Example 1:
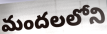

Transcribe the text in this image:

మందలలోని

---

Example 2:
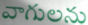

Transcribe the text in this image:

వాగులను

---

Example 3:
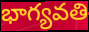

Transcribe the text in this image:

భాగ్యవతి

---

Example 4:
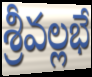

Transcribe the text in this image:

శ్రీవల్లభే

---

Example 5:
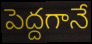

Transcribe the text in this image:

పెద్దగానే